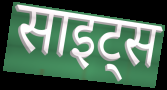
साइट्स